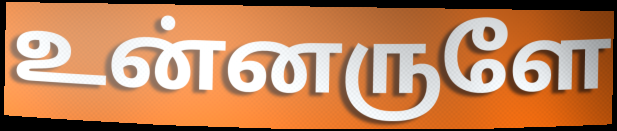
உன்னருளே